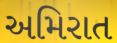
અમિરાત